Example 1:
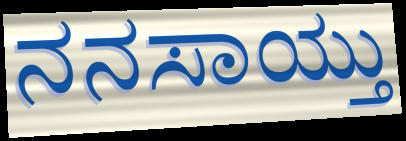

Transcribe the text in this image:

ನನಸಾಯ್ತು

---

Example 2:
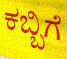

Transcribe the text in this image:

ಕಬ್ಬಿಗೆ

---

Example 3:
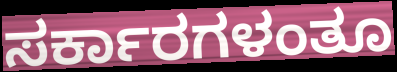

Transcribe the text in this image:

ಸರ್ಕಾರಗಳಂತೂ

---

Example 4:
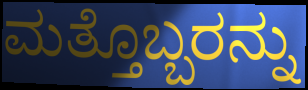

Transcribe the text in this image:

ಮತ್ತೊಬ್ಬರನ್ನು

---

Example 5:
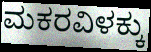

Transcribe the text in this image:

ಮಕರವಿಳಕ್ಕು